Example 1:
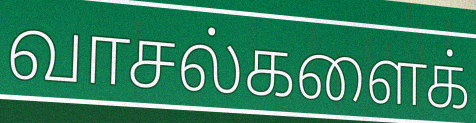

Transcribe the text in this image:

வாசல்களைக்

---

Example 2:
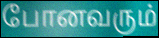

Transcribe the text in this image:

போனவரும்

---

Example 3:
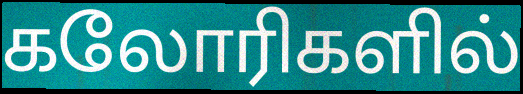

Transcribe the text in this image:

கலோரிகளில்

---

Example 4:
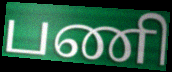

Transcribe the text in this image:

பணி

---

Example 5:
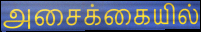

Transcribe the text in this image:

அசைக்கையில்